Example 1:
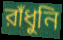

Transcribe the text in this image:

রাঁধুনি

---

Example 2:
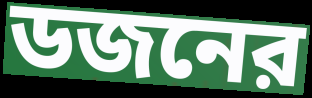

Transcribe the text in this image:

ডজনের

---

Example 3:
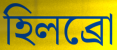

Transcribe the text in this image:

হিলব্রো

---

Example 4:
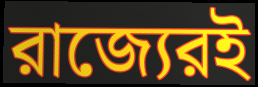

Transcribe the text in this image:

রাজ্যেরই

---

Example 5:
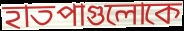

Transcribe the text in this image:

হাতপাগুলোকে